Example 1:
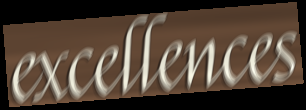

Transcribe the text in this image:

excellences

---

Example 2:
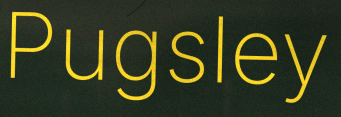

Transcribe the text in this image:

Pugsley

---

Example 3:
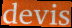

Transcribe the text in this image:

devis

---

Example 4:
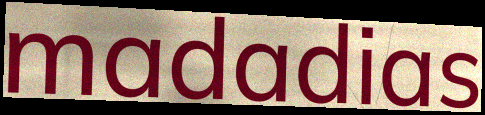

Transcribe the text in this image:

madadias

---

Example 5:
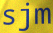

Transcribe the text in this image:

sjm